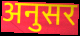
अनुसर